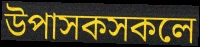
উপাসকসকলে